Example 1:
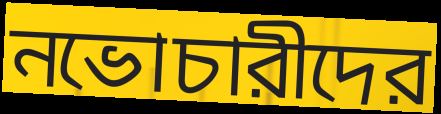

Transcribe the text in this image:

নভোচারীদের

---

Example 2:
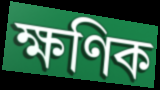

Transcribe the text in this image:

ক্ষণিক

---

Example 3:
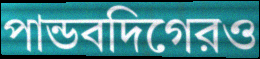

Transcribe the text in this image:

পান্ডবদিগেরও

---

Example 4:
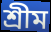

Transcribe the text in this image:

শ্রীম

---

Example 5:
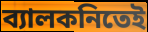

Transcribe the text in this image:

ব্যালকনিতেই